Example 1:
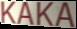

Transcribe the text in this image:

KAKA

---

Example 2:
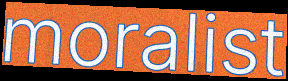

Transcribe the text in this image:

moralist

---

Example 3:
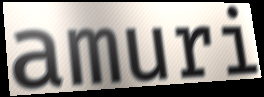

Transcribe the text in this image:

amuri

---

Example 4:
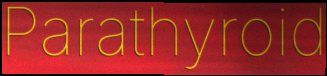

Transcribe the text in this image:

Parathyroid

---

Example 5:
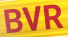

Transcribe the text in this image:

BVR